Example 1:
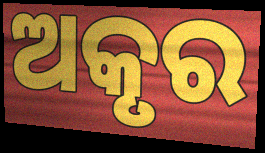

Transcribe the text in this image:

ଅକୃର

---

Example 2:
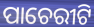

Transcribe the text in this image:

ପାଚେରୀଟି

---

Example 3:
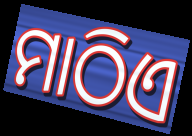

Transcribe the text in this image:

ମାଠିଏ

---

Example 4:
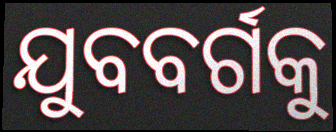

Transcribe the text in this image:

ଯୁବବର୍ଗକୁ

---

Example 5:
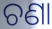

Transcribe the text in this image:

ଚଣା